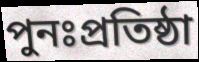
পুনঃপ্রতিষ্ঠা